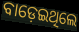
ବାଡ଼େଇଥିଲେ